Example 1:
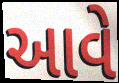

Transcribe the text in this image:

આવે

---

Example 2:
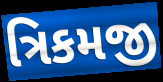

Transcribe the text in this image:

ત્રિકમજી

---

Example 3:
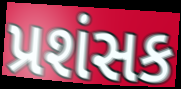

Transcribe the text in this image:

પ્રશંસક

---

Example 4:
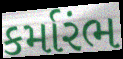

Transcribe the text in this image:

કર્મારંભ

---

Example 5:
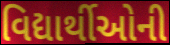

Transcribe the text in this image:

વિદ્યાર્થીઓની